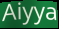
Aiyya